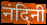
नंदिनी